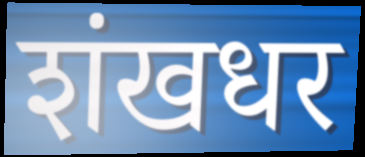
शंखधर